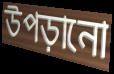
উপড়ানো